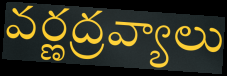
వర్ణద్రవ్యాలు